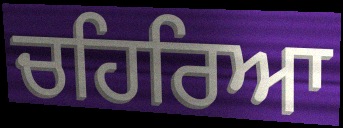
ਚਹਿਰਿਆ